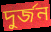
দুর্জন